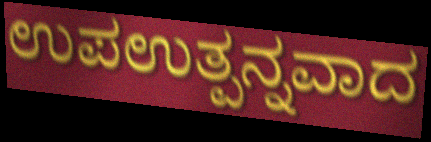
ಉಪಉತ್ಪನ್ನವಾದ